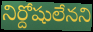
నిర్దోషులేనని